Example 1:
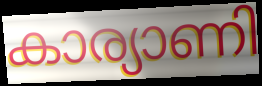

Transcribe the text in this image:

കാര്യാണി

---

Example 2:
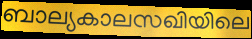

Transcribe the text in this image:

ബാല്യകാലസഖിയിലെ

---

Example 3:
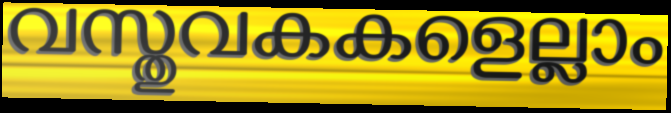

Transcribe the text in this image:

വസ്തുവകകളെല്ലാം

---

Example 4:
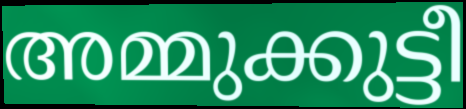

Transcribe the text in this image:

അമ്മുക്കുട്ടീ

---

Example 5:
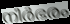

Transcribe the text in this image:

നിർഭരം